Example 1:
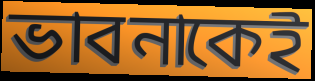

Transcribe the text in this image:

ভাবনাকেই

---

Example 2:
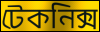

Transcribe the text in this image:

টেকনিক্স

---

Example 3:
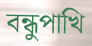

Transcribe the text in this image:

বন্ধুপাখি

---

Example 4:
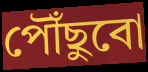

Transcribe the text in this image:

পৌঁছুবো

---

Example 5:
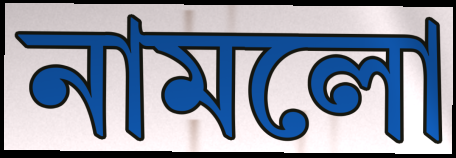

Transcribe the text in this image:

নামলো